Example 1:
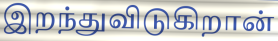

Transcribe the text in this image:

இறந்துவிடுகிறான்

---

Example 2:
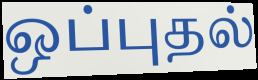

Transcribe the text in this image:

ஒப்புதல்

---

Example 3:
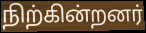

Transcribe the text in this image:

நிற்கின்றனர்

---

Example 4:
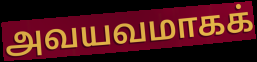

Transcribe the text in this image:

அவயவமாகக்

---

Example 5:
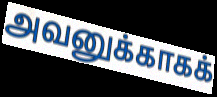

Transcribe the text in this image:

அவனுக்காகக்